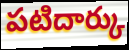
పటిదార్కు